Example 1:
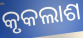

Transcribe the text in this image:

କୃକଲାଶ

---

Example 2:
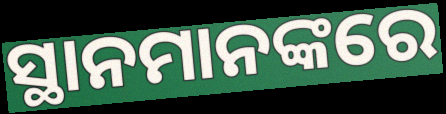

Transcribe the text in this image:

ସ୍ଥାନମାନଙ୍କରେ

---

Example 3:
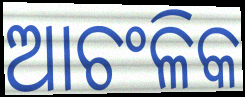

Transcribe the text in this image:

ଆଚଂଳିକ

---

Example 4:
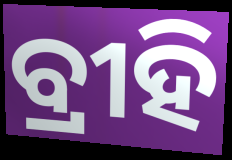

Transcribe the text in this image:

ବ୍ରୀହି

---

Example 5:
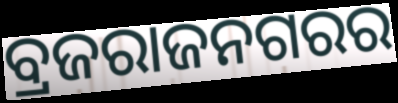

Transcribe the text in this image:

ବ୍ରଜରାଜନଗରର